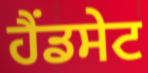
ਹੈਂਡਸੇਟ